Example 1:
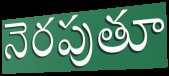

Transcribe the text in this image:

నెరపుతూ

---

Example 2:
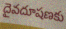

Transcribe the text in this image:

దైవదూషణకు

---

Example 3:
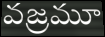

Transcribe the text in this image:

వజ్రమూ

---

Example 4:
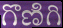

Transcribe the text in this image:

గొణిగి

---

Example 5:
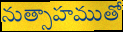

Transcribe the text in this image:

నుత్సాహముతో